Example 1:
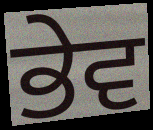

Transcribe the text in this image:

ਭੇਵ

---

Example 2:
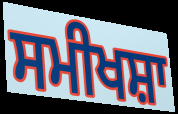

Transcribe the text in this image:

ਸਮੀਖਸ਼ਾ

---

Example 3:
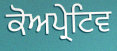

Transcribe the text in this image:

ਕੋਅਪ੍ਰੇਟਿਵ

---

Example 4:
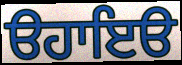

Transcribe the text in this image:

ੳਹਾਇੳ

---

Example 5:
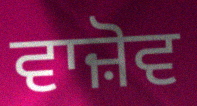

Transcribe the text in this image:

ਵਾਜ਼ੋਵ